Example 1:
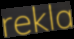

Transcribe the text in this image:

rekla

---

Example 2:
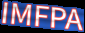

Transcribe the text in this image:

IMFPA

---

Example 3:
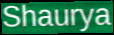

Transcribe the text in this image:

Shaurya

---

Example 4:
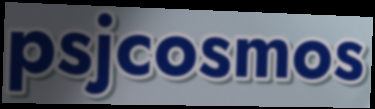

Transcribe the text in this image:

psjcosmos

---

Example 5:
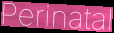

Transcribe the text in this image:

Perinatal